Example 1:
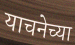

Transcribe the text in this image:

याचनेच्या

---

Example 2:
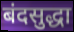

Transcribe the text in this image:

बंदसुद्धा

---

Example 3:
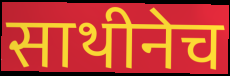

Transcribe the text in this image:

साथीनेच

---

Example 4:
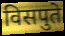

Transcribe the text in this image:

विसपुते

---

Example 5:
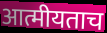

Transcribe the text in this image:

आत्मीयताच